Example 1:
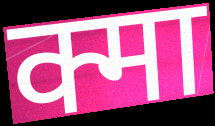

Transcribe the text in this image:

क्मा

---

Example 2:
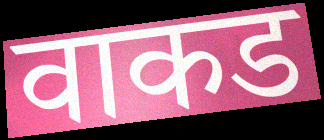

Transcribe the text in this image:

वाकड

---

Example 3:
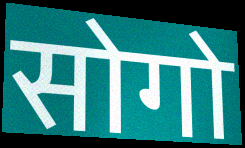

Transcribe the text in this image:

सोगो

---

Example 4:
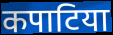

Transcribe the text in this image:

कपाटिया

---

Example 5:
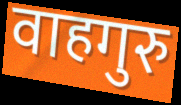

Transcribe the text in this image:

वाहगुरु